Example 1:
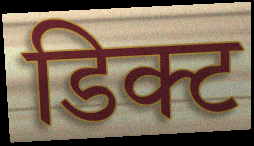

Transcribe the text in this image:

डिक्ट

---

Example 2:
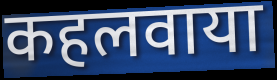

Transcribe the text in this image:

कहलवाया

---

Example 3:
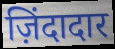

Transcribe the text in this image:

ज़िंदादार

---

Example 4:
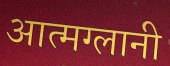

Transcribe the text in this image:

आत्मग्लानी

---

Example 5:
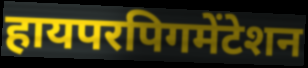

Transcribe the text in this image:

हायपरपिगमेंटेशन